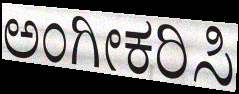
ಅಂಗೀಕರಿಸಿ